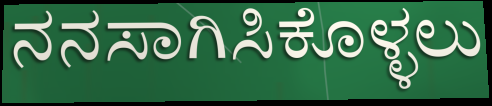
ನನಸಾಗಿಸಿಕೊಳ್ಳಲು